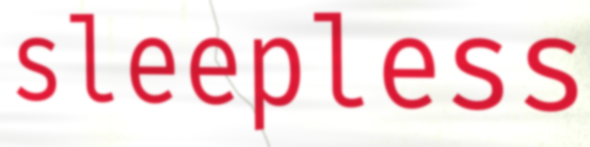
sleepless